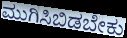
ಮುಗಿಸಿಬಿಡಬೇಕು